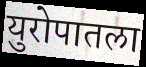
युरोपातला